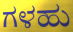
ಗಳಹು